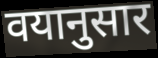
वयानुसार